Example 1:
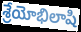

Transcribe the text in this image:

శ్రేయోభిలాషి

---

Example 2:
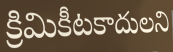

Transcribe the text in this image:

క్రిమికీటకాదులని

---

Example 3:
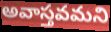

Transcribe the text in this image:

అవాస్తవమని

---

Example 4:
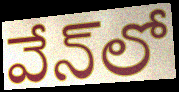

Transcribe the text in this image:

వేన్‌లో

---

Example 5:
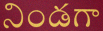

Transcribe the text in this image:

నిండగా